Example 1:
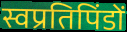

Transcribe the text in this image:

स्वप्रतिपिंडों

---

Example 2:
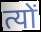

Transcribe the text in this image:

त्यों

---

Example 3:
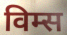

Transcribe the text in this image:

विम्स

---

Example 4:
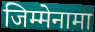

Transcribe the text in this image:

जिम्मेनामा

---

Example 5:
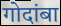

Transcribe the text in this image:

गोदांबा